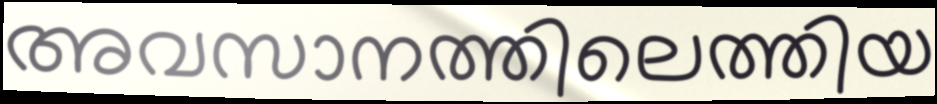
അവസാനത്തിലെത്തിയ